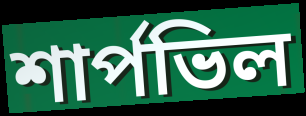
শার্পভিল